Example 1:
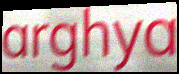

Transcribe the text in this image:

arghya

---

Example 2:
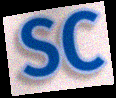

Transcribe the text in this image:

SC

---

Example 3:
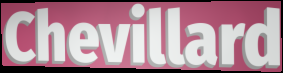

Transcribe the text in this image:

Chevillard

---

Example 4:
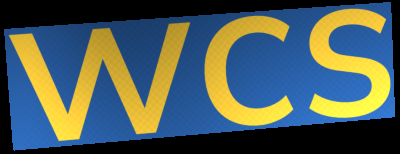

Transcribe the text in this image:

wcs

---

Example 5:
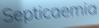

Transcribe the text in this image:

Septicaemia